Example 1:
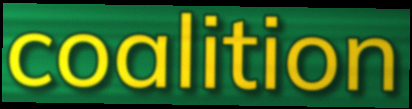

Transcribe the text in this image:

coalition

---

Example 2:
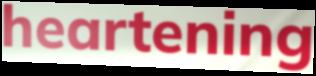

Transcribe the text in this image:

heartening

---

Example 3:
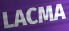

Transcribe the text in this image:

LACMA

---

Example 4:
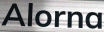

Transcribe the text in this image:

Alorna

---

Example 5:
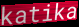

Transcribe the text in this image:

katika